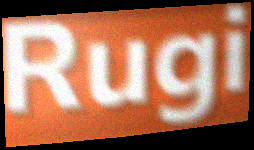
Rugi